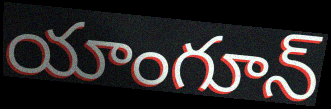
యాంగూన్